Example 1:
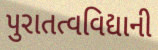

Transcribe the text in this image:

પુરાતત્વવિદ્યાની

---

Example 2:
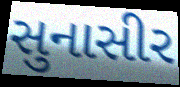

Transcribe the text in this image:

સુનાસીર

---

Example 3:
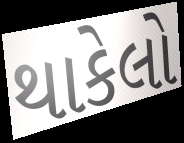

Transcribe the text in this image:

થાકેલો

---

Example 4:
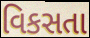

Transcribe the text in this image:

વિકસતા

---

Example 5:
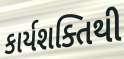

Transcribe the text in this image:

કાર્યશક્તિથી